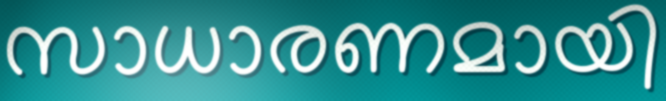
സാധാരണമായി